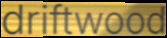
driftwood